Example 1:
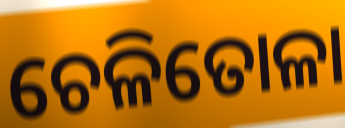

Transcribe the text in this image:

ଚେଳିତୋଳା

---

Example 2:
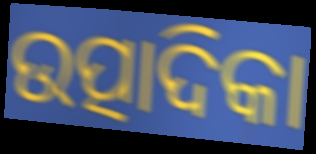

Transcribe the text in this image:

ଉତ୍ପାଦିକା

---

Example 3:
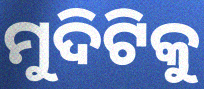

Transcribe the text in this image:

ମୁଦିଟିକୁ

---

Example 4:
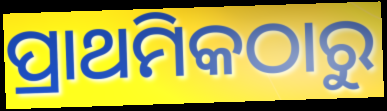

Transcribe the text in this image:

ପ୍ରାଥମିକଠାରୁ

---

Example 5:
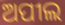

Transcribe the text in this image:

ଅପୀଲ